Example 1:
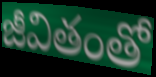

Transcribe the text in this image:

జీవితంతో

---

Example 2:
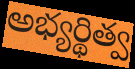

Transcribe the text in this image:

అభ్యర్థిత్వ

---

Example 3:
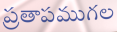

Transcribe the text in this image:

ప్రతాపముగల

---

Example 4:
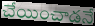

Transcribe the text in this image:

చేయించాడనే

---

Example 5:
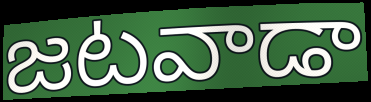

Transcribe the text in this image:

జటవాడా